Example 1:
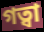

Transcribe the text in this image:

গত্বা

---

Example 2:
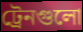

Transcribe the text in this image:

ট্রেনগুলো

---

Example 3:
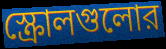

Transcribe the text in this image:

স্ক্রোলগুলোর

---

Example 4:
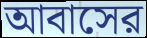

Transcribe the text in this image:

আবাসের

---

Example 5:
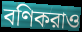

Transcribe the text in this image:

বণিকরাও